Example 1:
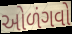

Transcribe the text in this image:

ઓળંગવો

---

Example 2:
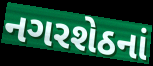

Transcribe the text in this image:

નગરશેઠનાં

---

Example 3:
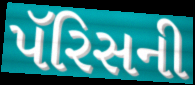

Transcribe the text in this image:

પૅરિસની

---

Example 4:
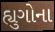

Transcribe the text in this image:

હ્યુગોના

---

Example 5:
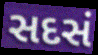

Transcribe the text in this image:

સદસં